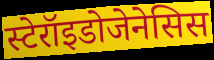
स्टेरॉइडोजेनेसिस